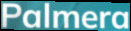
Palmera